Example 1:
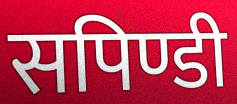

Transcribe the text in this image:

सपिण्डी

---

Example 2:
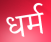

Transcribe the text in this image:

धर्म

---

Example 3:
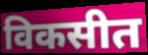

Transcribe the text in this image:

विकसीत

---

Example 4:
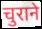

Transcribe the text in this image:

चुराने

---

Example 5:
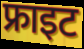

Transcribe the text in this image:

फ्राइट